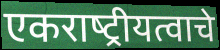
एकराष्ट्रीयत्वाचे